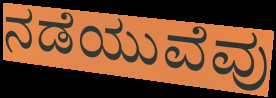
ನಡೆಯುವೆವು